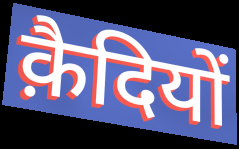
क़ैदियों